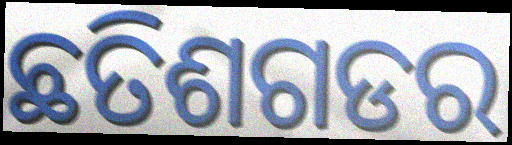
ଛତିଶଗଡର